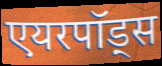
एयरपॉड्स